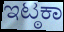
ಇಟ್ಠಕಾ